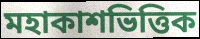
মহাকাশভিত্তিক